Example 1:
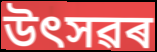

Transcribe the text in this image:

উৎসৱৰ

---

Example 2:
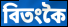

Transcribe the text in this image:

বিতংকৈ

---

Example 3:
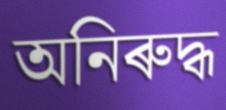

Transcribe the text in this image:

অনিৰুদ্ধ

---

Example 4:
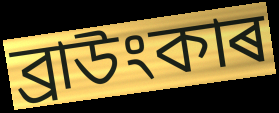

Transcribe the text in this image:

ব্ৰাউংকাৰ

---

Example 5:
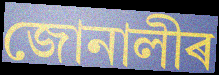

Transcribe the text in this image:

জোনালীৰ